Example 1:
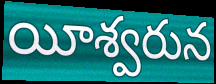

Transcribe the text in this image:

యీశ్వరున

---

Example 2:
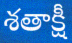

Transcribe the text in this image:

శతాక్షీ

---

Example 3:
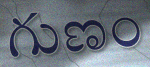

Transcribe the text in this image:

గుణం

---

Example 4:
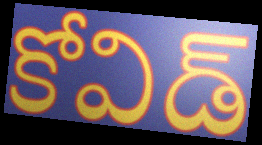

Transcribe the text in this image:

కోవిడ్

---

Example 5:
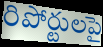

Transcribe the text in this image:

రిపోర్టులపై